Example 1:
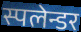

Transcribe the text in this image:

स्पलेन्डर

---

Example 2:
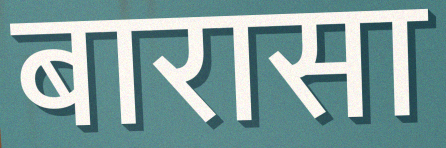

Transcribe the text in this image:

बारासा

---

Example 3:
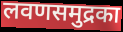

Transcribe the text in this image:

लवणसमुद्रका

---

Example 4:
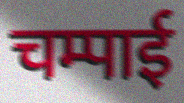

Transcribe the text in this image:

चम्‍पाई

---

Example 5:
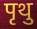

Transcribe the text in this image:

पृथु